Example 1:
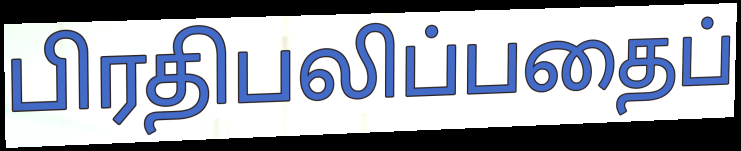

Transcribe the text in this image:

பிரதிபலிப்பதைப்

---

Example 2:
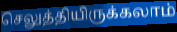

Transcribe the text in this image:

செலுத்தியிருக்கலாம்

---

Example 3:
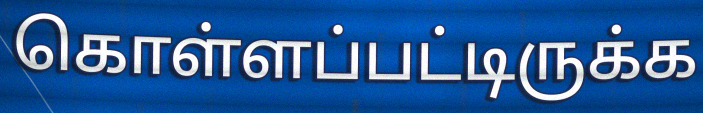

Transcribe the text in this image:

கொள்ளப்பட்டிருக்க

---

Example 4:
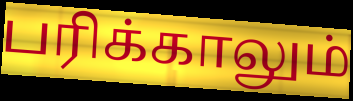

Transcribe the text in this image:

பரிக்காலும்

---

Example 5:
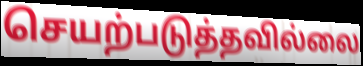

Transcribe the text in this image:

செயற்படுத்தவில்லை